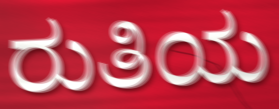
ರುತಿಯ